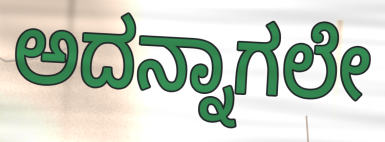
ಅದನ್ನಾಗಲೇ